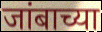
जांबाच्या